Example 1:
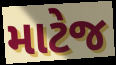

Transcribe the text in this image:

માટેજ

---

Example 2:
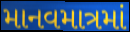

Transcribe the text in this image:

માનવમાત્રમાં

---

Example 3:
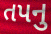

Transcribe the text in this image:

તપનુ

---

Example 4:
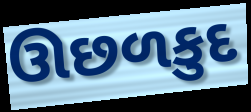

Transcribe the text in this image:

ઊછળકુદ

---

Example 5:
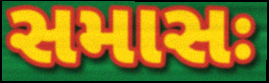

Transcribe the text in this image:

સમાસઃ